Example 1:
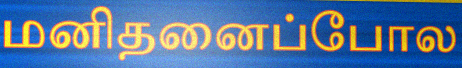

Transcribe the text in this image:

மனிதனைப்போல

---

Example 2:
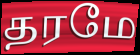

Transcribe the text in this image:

தரமே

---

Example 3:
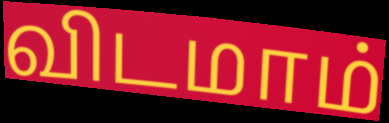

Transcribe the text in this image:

விடமாம்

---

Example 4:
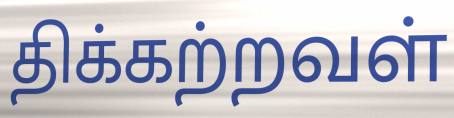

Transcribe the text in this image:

திக்கற்றவள்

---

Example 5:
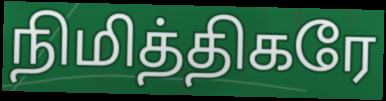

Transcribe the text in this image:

நிமித்திகரே